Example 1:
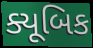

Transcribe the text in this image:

ક્યૂબિક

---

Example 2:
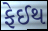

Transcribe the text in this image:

ફેઈથ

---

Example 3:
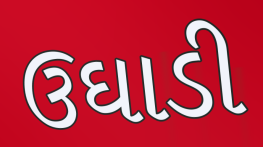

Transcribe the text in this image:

ઉઘાડી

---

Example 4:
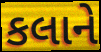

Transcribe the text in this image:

કલાને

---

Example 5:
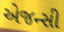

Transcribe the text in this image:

એજન્સી